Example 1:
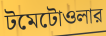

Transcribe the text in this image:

টমেটোওলার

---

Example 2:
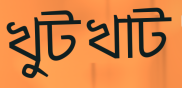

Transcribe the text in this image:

খুটখাট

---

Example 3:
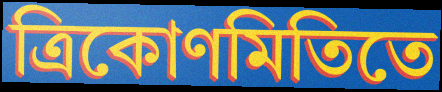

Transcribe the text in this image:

ত্রিকোণমিতিতে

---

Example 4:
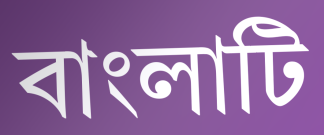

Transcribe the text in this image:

বাংলাটি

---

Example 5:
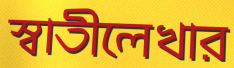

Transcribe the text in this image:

স্বাতীলেখার